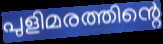
പുളിമരത്തിന്റെ